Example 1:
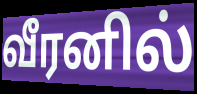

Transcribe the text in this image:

வீரனில்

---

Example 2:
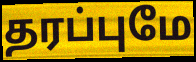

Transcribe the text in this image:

தரப்புமே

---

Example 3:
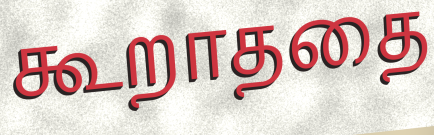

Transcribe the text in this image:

கூறாததை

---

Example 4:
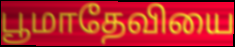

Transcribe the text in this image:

பூமாதேவியை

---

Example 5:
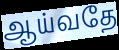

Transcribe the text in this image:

ஆய்வதே